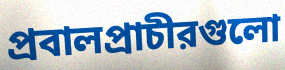
প্রবালপ্রাচীরগুলো